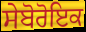
ਸੇਬੋਰੋਇਕ